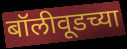
बॉलीवूडच्या